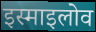
इस्माइलोव